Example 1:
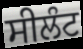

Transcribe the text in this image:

ਸੀਲੰਟ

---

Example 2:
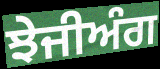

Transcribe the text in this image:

ਝੇਜੀਅੰਗ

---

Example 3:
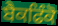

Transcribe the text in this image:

ਬੈਕਫਿੰਕੋ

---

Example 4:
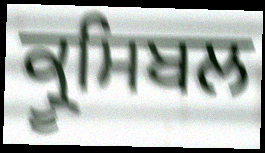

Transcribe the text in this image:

ਕ੍ਰੂਸਿਬਲ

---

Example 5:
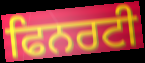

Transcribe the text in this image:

ਫਿਨਰਟੀ